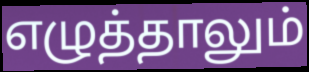
எழுத்தாலும்